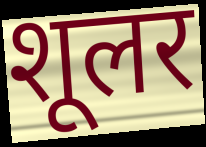
शूलर